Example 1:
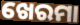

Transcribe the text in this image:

ଖେରମା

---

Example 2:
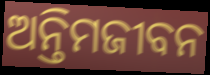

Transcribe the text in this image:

ଅନ୍ତିମଜୀବନ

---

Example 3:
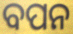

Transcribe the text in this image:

ବପନ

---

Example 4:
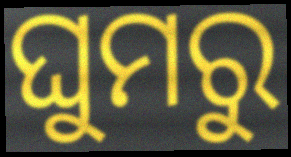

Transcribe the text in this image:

ଘୁମରୁ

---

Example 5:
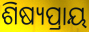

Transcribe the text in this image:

ଶିଷ୍ୟପ୍ରାୟ